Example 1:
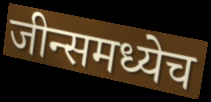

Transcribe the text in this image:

जीन्समध्येच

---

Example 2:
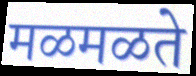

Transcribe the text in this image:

मळमळते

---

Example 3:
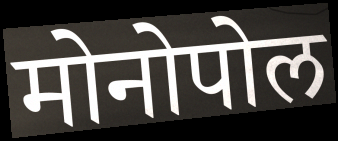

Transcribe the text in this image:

मोनोपोल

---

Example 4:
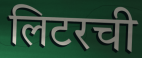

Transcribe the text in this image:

लिटरची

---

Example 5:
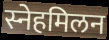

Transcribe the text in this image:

स्नेहमिलन